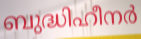
ബുദ്ധിഹീനർ